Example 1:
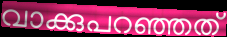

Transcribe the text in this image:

വാക്കുപറഞ്ഞത്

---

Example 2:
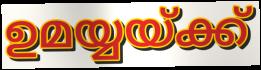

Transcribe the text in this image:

ഉമയ്യയ്ക്ക്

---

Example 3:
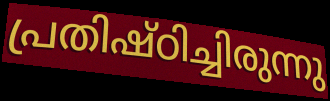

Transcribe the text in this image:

പ്രതിഷ്ഠിച്ചിരുന്നു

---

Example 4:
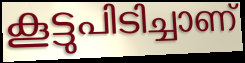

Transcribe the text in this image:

കൂട്ടുപിടിച്ചാണ്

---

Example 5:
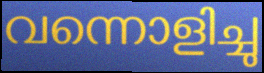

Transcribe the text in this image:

വന്നൊളിച്ചു